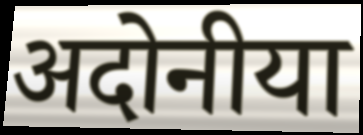
अदोनीया